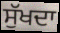
ਸੁੱਖਦਾ